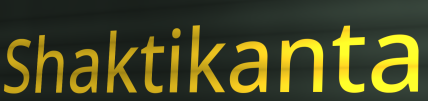
Shaktikanta